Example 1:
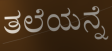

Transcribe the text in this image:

ತಲೆಯನ್ನೆ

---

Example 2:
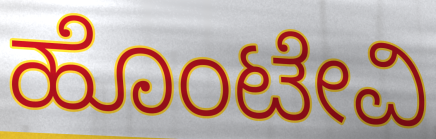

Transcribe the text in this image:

ಹೊಂಟೇವಿ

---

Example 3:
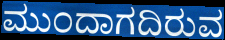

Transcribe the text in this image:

ಮುಂದಾಗದಿರುವ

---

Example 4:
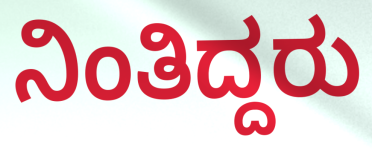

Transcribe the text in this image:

ನಿಂತಿದ್ದರು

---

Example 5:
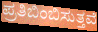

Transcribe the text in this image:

ಪ್ರತಿಬಿಂಬಿಸುತ್ತವೆ